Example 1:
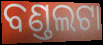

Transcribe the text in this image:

ବଣ୍ଡଲଟା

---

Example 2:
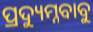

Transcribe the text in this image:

ପ୍ରଦ୍ୟୁମ୍ନବାବୁ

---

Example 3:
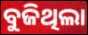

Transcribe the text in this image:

ବୁଜିଥିଲା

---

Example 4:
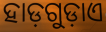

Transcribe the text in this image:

ହାଡ଼ଗୁଡ଼ାଏ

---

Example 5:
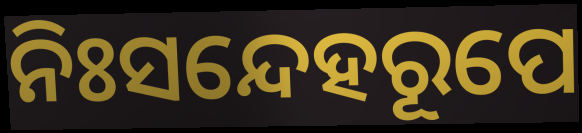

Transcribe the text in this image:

ନିଃସନ୍ଦେହରୂପେ